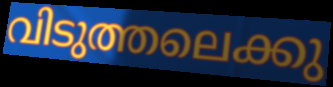
വിടുത്തലെക്കു